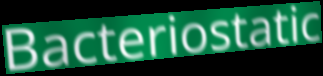
Bacteriostatic